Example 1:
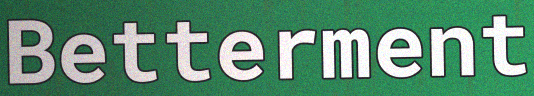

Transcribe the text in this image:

Betterment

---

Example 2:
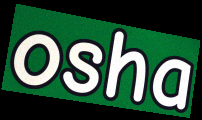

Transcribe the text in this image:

osha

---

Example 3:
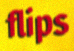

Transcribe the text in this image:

flips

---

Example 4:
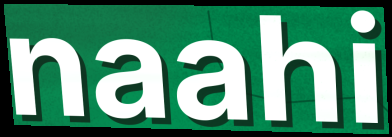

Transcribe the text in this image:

naahi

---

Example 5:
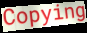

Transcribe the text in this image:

Copying